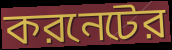
করনেটের